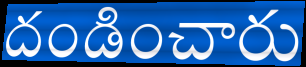
దండించారు